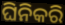
ଘିନିକରି